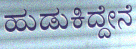
ಹುಡುಕಿದ್ದೇನೆ